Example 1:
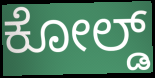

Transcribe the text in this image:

ಕೋಲ್ಡ್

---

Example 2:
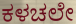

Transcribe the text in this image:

ಕಳಚಲೇ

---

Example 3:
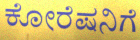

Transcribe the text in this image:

ಕೋರೆಷನಿಗೆ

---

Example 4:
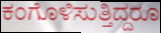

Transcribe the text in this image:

ಕಂಗೊಳಿಸುತ್ತಿದ್ದರೂ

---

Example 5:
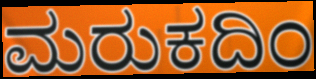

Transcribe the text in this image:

ಮರುಕದಿಂ